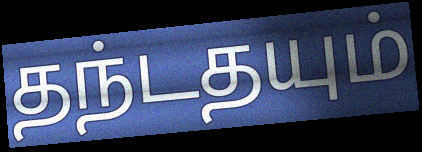
தந்டதயும்